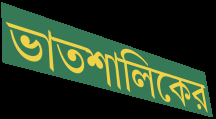
ভাতশালিকের